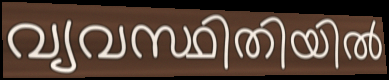
വ്യവസ്ഥിതിയിൽ